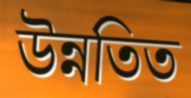
উন্নতিত